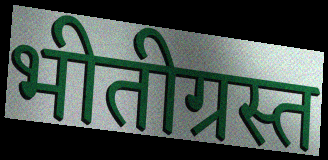
भीतीग्रस्त